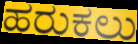
ಹರುಕಲು